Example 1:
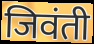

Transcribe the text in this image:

जिवंती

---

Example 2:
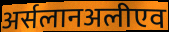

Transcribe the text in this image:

अर्सलानअलीएव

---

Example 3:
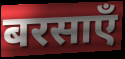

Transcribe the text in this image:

बरसाएँ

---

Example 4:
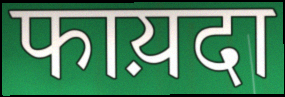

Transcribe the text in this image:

फाय़दा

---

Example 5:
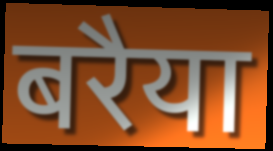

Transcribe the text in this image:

बरैया